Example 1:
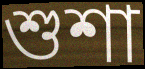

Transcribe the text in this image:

শুশা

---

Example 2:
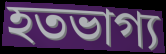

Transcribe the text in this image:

হতভাগ্য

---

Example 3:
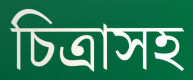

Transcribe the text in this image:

চিত্রাসহ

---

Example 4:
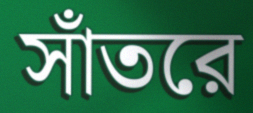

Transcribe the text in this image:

সাঁতরে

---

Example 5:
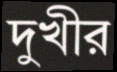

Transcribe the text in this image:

দুখীর